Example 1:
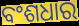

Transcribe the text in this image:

ବଂଶଧାର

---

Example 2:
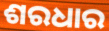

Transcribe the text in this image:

ଶରଧାର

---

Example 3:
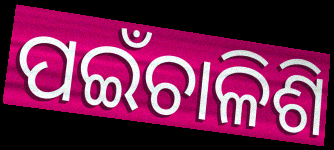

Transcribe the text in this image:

ପଇଁଚାଳିଶି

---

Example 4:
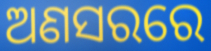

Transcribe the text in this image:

ଅଣସରରେ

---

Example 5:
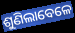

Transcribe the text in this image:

ଶୁଣିଲାବେଳେ